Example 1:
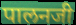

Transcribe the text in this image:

पालनजी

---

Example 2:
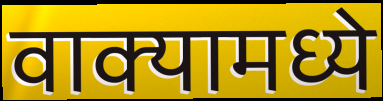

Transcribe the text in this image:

वाक्यामध्ये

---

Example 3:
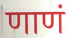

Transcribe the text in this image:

णाणं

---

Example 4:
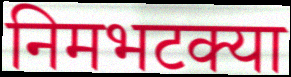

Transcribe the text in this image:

निमभटक्या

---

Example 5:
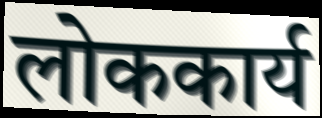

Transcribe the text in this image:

लोककार्य